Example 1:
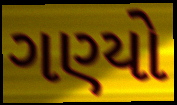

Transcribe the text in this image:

ગણ્યો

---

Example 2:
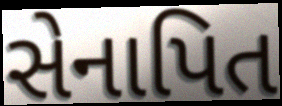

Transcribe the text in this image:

સેનાપિત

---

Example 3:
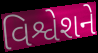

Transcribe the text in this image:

વિશ્વેશને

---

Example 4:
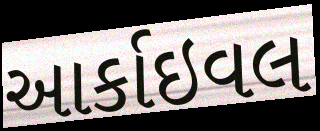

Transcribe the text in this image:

આર્કાઇવલ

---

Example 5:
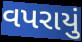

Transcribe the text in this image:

વપરાયું